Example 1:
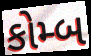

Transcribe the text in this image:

કોમ્બ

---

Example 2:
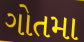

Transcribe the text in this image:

ગોતમા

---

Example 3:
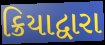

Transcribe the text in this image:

ક્રિયાદ્વારા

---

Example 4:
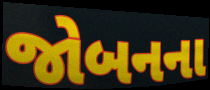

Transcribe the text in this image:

જોબનના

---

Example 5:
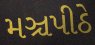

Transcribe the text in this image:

મઞ્ચપીઠે